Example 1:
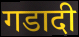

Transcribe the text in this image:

गडादी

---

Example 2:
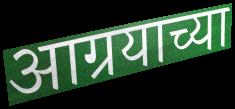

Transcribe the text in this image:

आग्रयाच्या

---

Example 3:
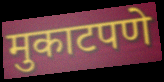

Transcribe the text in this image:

मुकाटपणे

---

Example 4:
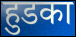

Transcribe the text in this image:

हुडका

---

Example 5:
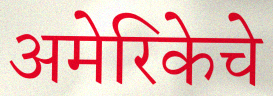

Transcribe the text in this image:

अमेरिकेचे